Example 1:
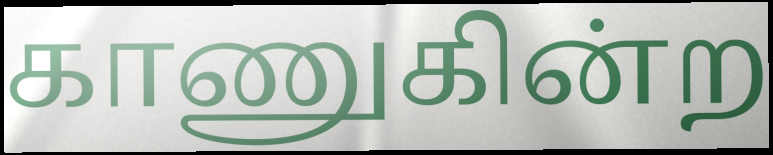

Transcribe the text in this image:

காணுகின்ற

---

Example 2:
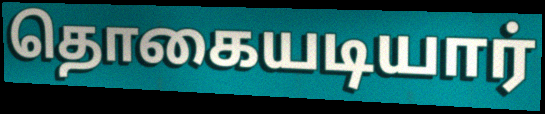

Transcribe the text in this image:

தொகையடியார்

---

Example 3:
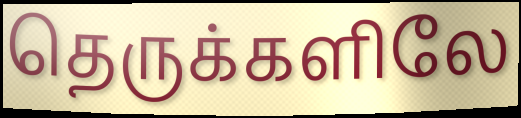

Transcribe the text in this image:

தெருக்களிலே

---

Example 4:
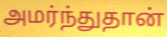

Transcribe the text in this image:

அமர்ந்துதான்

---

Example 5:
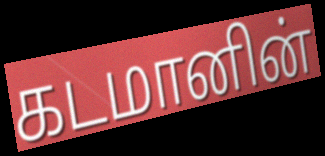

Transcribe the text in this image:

கடமானின்